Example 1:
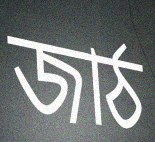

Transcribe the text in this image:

জাঠ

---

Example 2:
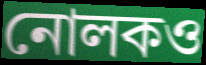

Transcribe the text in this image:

নোলকও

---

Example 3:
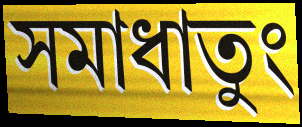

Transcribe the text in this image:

সমাধাতুং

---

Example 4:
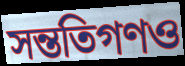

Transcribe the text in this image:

সন্ততিগণও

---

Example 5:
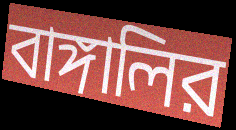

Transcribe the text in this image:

বাঙ্গালির